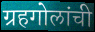
ग्रहगोलांची